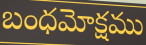
బంధమోక్షము